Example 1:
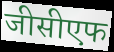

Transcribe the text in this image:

जीसीएफ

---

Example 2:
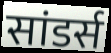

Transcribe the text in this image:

सांडर्स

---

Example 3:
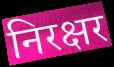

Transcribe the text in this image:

निरक्षर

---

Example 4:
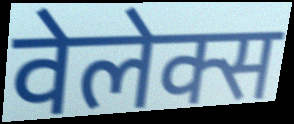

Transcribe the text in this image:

वेलेक्स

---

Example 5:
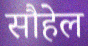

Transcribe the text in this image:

सौहेल